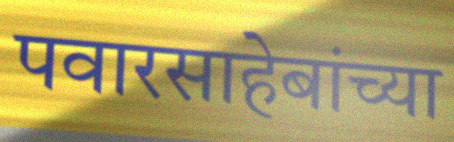
पवारसाहेबांच्या